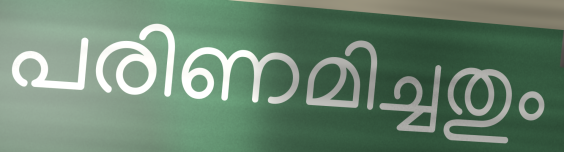
പരിണമിച്ചതും